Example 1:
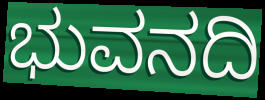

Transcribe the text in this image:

ಭುವನದಿ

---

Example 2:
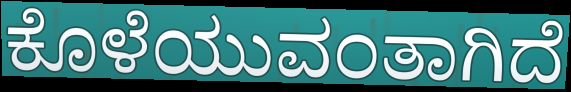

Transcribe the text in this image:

ಕೊಳೆಯುವಂತಾಗಿದೆ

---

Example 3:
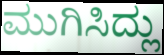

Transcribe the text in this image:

ಮುಗಿಸಿದ್ಲು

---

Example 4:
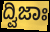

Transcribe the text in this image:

ದ್ವಿಜಾಃ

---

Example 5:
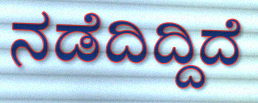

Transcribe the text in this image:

ನಡೆದಿದ್ದಿದೆ